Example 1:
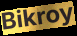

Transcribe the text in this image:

Bikroy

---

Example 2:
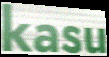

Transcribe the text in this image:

kasu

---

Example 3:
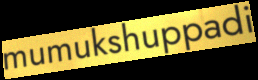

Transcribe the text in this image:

mumukshuppadi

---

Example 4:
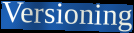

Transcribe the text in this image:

Versioning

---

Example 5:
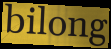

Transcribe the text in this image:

bilong